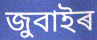
জুবাইৰ